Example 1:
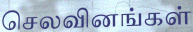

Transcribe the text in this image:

செலவினங்கள்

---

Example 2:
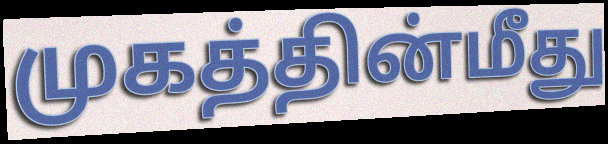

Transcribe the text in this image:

முகத்தின்மீது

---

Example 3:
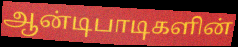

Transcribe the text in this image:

ஆன்டிபாடிகளின்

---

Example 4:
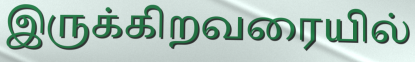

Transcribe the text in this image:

இருக்கிறவரையில்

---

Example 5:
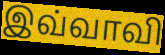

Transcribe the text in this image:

இவ்வாவி